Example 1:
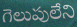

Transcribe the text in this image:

గెలుపులేని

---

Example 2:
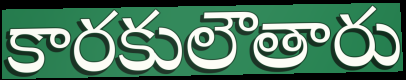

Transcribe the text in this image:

కారకులౌతారు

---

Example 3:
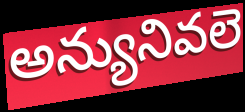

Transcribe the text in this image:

అన్యునివలె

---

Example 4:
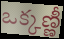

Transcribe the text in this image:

ఒక్కణ్ణీ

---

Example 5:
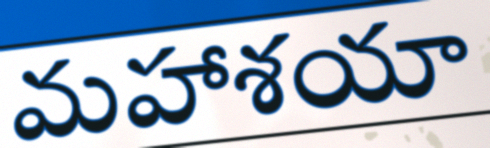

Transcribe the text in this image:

మహాశయా